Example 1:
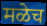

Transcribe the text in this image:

मळेच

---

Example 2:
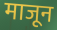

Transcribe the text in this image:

माजून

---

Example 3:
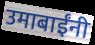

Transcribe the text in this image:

उमाबाईंनी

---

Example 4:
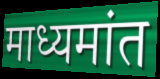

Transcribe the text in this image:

माध्यमांत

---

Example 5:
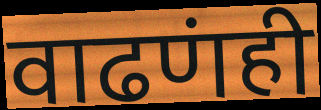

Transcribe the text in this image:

वाढणंही